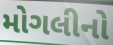
મોગલીનો